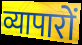
व्यापारों